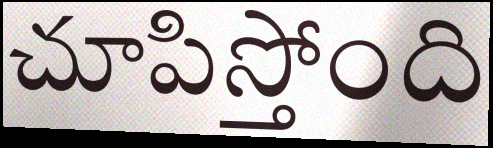
చూపిస్తోంది